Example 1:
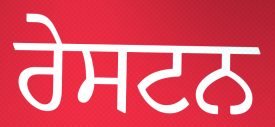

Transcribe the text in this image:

ਰੇਸਟਨ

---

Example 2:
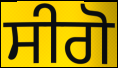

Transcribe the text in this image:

ਸੀਗੋ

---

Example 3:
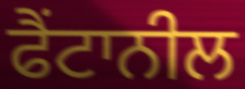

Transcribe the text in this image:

ਫੈਂਟਾਨੀਲ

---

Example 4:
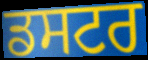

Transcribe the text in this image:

ਡਸਟਰ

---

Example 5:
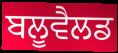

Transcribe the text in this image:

ਬਲੂਵੈਲਡ